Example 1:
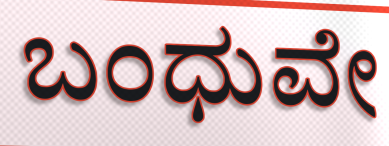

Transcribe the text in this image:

ಬಂಧುವೇ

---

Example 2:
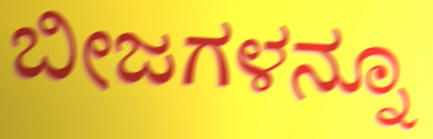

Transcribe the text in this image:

ಬೀಜಗಳನ್ನೂ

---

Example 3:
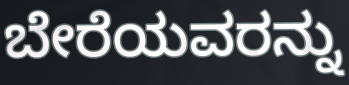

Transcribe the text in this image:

ಬೇರೆಯವರನ್ನು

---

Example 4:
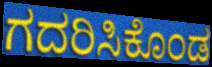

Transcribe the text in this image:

ಗದರಿಸಿಕೊಂಡ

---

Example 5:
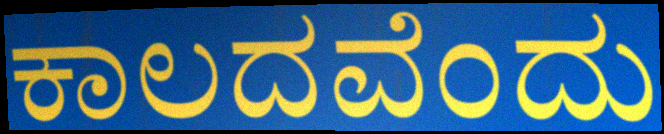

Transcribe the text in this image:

ಕಾಲದವೆಂದು